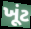
ખૂંટ